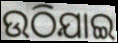
ଉଠିଯାଇ